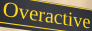
Overactive